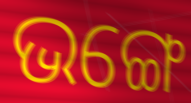
ଭଙ୍ଗେ